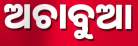
ଅଚାବୁଆ